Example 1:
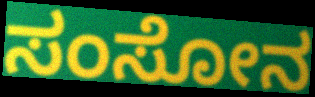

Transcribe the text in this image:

ಸಂಸೋನ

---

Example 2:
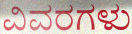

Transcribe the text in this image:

ವಿವರಗಳು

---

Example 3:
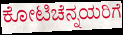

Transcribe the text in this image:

ಕೋಟಿಚೆನ್ನಯರಿಗೆ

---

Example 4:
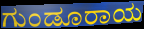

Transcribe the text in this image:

ಗುಂಡೂರಾಯ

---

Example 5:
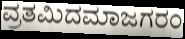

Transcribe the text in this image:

ವ್ರತಮಿದಮಾಜಗರಂ